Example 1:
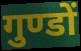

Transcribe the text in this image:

गुण्डों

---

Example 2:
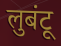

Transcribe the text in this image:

लुबंटू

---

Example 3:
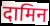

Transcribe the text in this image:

दामिन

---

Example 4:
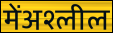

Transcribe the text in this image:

मेंअश्लील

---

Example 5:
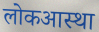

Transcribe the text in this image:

लोकआस्था